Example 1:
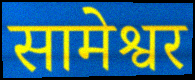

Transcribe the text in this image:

सामेश्वर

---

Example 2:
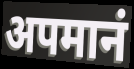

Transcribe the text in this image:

अपमानं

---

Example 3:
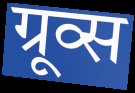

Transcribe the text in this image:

ग्रूव्स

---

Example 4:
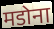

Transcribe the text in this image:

मडोना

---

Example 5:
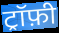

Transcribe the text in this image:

ट्रॉफ़ी